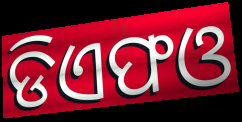
ଡିଏଫଓ